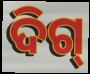
ଦିଗ୍